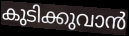
കുടിക്കുവാൻ